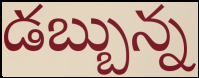
డబ్బున్న